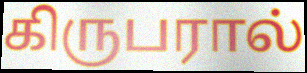
கிருபரால்